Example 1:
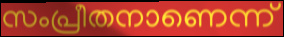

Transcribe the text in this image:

സംപ്രീതനാണെന്ന്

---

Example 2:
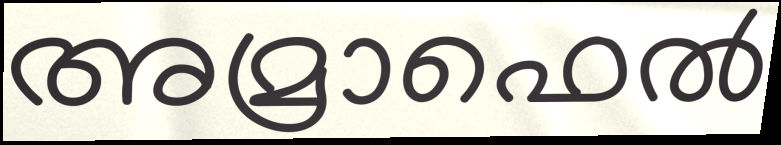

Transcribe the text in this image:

അമ്രാഫെൽ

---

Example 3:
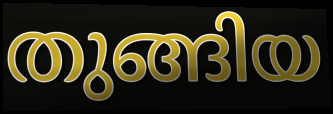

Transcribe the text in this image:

തുങ്ങിയ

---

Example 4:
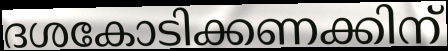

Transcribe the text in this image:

ദശകോടിക്കണക്കിന്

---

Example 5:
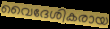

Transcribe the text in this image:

വൈദേശികരായ